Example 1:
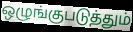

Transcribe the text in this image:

ஒழுங்குபடுத்தும்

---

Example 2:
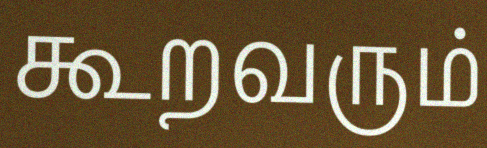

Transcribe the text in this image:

கூறவரும்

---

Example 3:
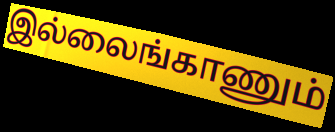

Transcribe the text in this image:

இல்லைங்காணும்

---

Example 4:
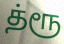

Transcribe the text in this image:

த்ரூ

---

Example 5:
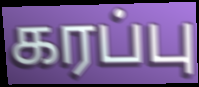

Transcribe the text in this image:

கரப்பு